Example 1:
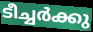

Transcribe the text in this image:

ടീച്ചർക്കു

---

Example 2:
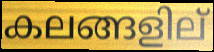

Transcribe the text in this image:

കലങ്ങളില്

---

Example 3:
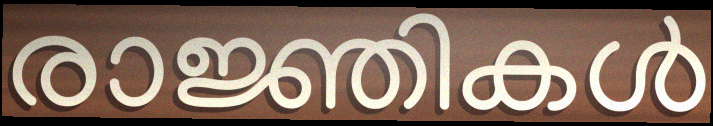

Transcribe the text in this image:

രാജ്ഞികൾ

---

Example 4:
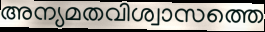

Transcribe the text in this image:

അന്യമതവിശ്വാസത്തെ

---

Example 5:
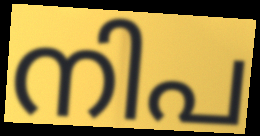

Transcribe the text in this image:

നിപ